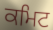
ਕਮਿਟ